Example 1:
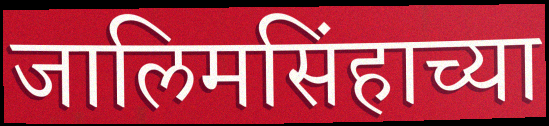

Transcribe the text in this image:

जालिमसिंहाच्या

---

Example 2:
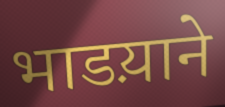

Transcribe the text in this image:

भाडय़ाने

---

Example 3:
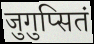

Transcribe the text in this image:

जुगुप्सितं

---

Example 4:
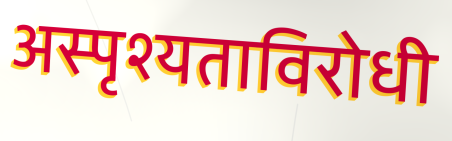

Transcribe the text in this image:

अस्पृश्यताविरोधी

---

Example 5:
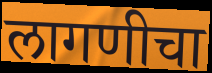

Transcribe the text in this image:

लागणीचा